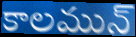
కాలమున్